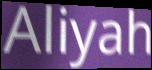
Aliyah